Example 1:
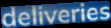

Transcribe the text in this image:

deliveries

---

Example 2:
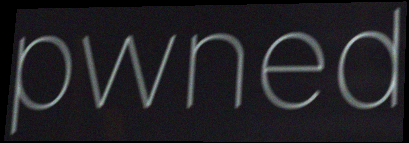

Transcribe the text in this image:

pwned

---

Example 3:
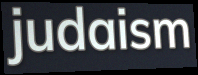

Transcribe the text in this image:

judaism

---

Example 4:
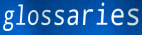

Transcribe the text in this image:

glossaries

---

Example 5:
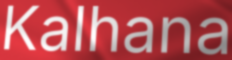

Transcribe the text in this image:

Kalhana